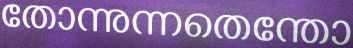
തോന്നുന്നതെന്തോ